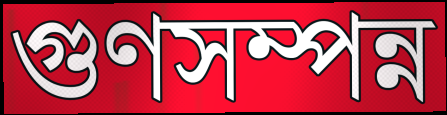
গুণসম্পন্ন